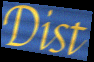
Dist